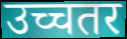
उच्चतर